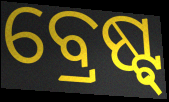
ବ୍ରେଷ୍ଟ୍